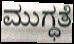
ಮುಗ್ಧತೆ